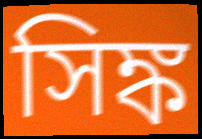
সিঙ্ক